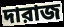
দারাজ